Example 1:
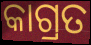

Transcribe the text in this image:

କାଗ୍ରତ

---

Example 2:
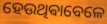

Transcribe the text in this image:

ହେଉଥିଵାବେଳେ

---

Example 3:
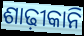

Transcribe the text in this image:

ଶାଢ଼ୀକାନି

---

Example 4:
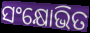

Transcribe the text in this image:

ସଂକ୍ଷୋଭିତ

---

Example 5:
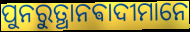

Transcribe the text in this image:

ପୁନରୁତ୍ଥାନଵାଦୀମାନେ